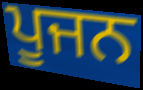
ਪੂਜਨ